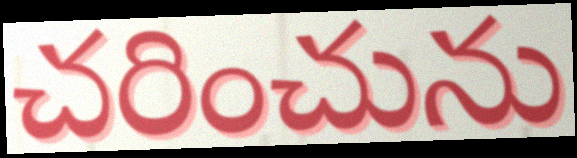
చరించును